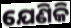
ଯେଣିକି